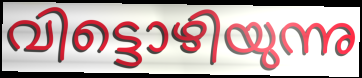
വിട്ടൊഴിയുന്നു